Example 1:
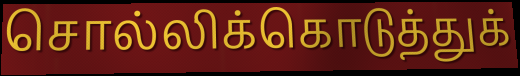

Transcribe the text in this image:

சொல்லிக்கொடுத்துக்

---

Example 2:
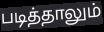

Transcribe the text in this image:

படித்தாலும்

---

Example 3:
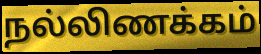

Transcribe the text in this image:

நல்லிணக்கம்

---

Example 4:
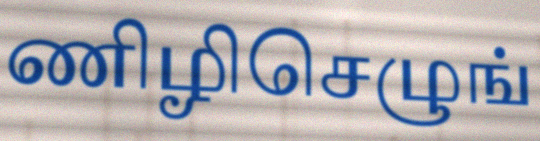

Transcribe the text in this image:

ணிழிசெழுங்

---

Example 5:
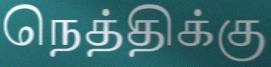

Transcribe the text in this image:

நெத்திக்கு